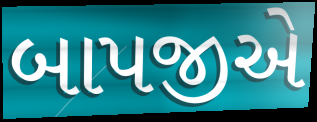
બાપજીએ